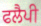
ਫਲੈਪੀ